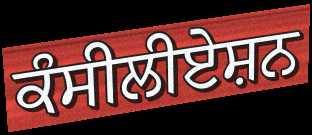
ਕੰਸੀਲੀਏਸ਼ਨ